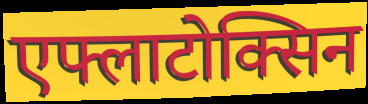
एफ्लाटोक्सिन